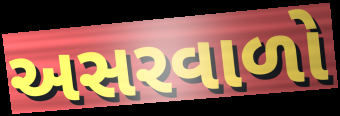
અસરવાળો